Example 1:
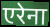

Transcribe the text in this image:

एरेना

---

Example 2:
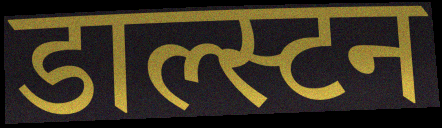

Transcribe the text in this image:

डाल्स्टन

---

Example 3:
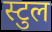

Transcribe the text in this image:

स्टुल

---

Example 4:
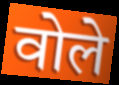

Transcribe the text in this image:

वोले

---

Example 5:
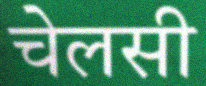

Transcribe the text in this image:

चेलसी